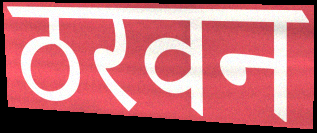
ठरवन